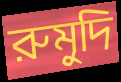
রুমুদি